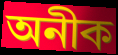
অনীক